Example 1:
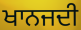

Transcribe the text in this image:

ਖਾਨਜਦੀ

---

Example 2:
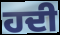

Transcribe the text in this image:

ਹਦੀ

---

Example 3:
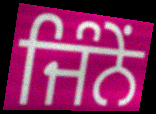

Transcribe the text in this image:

ਜਿੰਨੇਂ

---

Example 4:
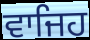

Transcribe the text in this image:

ਵਾਜਿਹ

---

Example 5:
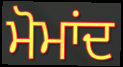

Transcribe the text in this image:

ਮੋਮਾਂਦ